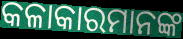
କଳାକାରମାନଙ୍କ